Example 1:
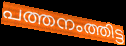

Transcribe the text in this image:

പത്തനംത്തിട്ട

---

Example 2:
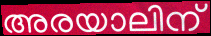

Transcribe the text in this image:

അരയാലിന്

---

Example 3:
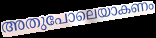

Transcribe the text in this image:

അതുപോലെയാകണം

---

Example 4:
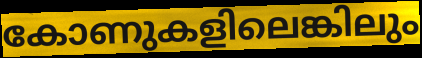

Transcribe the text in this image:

കോണുകളിലെങ്കിലും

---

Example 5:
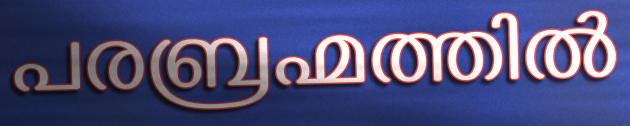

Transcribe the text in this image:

പരബ്രഹ്മത്തിൽ